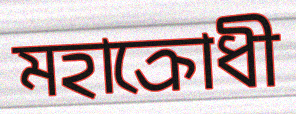
মহাক্রোধী